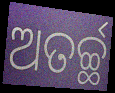
ଅତର୍ଚ୍ଛ